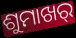
ଶୁମାଖର୍